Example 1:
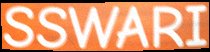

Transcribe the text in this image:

SSWARI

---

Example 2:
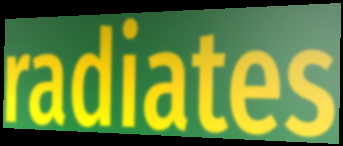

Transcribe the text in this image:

radiates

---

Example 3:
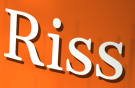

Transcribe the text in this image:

Riss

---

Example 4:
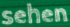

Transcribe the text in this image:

sehen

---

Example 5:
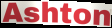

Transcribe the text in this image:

Ashton